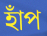
হাঁপ